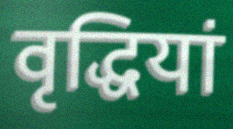
वृद्धियां